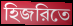
হিজরিতে